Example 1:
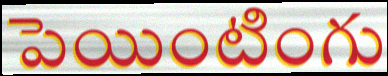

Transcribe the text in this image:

పెయింటింగు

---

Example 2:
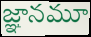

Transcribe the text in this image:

జ్ఞానమూ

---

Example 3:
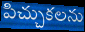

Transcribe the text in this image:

పిచ్చుకలను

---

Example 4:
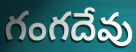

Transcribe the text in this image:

గంగదేవు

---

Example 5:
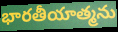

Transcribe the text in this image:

భారతీయాత్మను